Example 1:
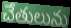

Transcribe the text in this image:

చేతులును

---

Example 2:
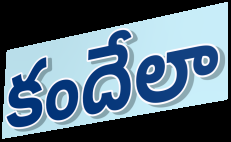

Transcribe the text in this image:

కందేలా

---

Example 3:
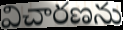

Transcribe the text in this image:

విచారణను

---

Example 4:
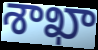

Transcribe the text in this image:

శాఖా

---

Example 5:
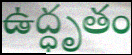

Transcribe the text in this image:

ఉద్ధృతం